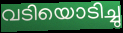
വടിയൊടിച്ചു